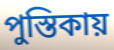
পুস্তিকায়